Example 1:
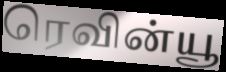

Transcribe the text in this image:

ரெவின்யூ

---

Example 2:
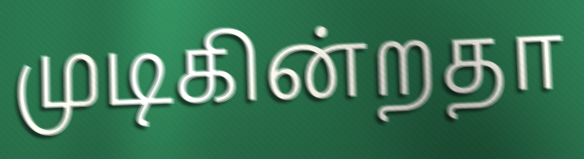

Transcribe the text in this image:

முடிகின்றதா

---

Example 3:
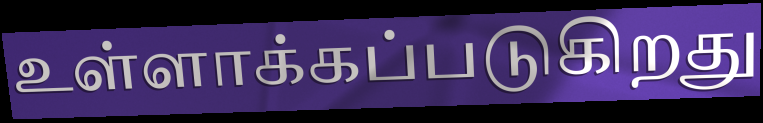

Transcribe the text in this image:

உள்ளாக்கப்படுகிறது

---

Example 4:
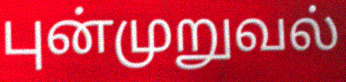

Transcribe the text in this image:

புன்முறுவல்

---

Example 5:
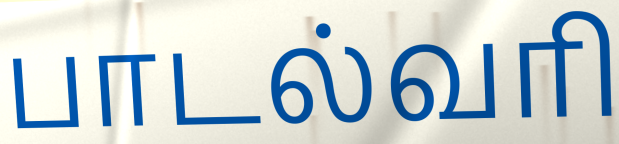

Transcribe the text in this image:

பாடல்வரி